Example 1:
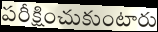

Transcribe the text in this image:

పరీక్షించుకుంటారు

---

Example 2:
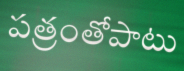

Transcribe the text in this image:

పత్రంతోపాటు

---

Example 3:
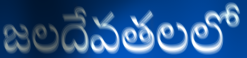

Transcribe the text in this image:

జలదేవతలలో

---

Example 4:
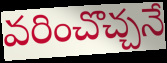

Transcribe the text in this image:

వరించొచ్చనే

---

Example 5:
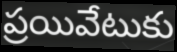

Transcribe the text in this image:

ప్రయివేటుకు